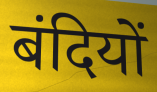
बंदियों